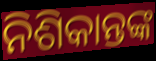
ନିଶିକାନ୍ତଙ୍କ